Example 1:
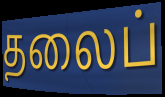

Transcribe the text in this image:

தலைப்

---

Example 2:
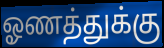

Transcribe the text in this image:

ஓணத்துக்கு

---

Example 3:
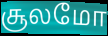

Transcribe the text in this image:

சூலமோ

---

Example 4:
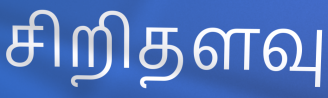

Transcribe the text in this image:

சிறிதளவு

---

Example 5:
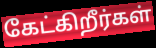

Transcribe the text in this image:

கேட்கிறீர்கள்